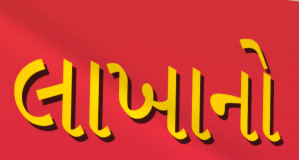
લાખાનો